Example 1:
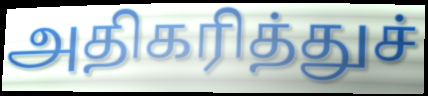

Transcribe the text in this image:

அதிகரித்துச்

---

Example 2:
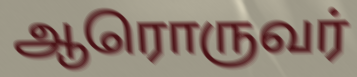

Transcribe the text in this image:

ஆரொருவர்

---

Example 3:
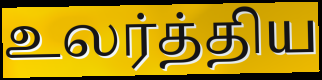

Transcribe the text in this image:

உலர்த்திய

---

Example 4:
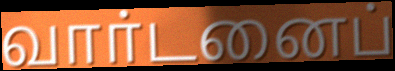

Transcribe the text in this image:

வார்டனைப்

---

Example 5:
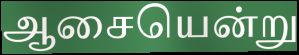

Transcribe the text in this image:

ஆசையென்று